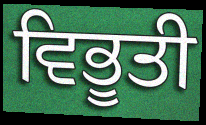
ਵਿਭੂਤੀ